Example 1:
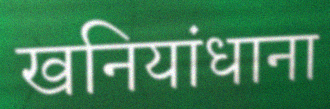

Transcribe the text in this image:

खनियांधाना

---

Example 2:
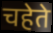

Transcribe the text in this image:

चहेते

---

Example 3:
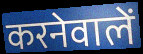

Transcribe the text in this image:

करनेवालें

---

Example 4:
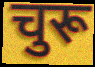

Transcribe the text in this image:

चुरू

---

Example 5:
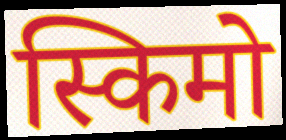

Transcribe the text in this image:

स्किमो